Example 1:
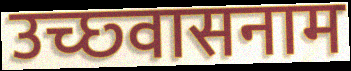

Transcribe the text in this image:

उच्छ्वासनाम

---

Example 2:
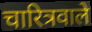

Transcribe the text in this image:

चारित्रवाले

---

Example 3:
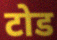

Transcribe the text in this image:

टोड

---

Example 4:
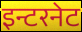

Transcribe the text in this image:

इन्‍टरनेट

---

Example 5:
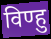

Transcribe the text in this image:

विण्हु